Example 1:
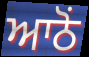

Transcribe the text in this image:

ਆਠੋਂ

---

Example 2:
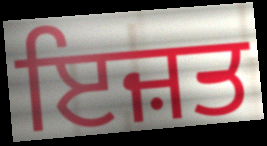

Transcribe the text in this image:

ਇਜ਼ਤ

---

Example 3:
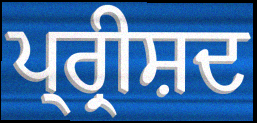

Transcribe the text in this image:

ਪ੍ਰ੍ਰੀਸ਼ਦ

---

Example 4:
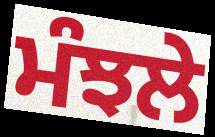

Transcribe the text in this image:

ਮੰਝਲੇ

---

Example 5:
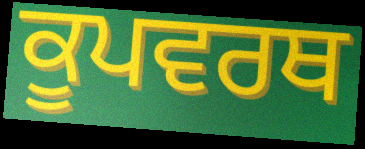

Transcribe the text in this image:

ਕੂਪਵਰਥ